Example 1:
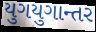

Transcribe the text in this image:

યુગયુગાન્તર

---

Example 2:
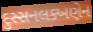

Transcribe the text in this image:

દુસ્સનલક્ખણેન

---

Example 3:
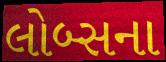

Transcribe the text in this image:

લોબ્સના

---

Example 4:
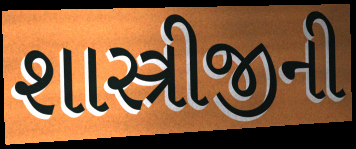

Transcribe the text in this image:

શાસ્ત્રીજીની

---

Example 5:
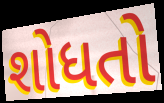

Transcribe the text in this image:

શોધતો